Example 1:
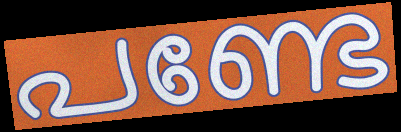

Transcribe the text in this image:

പണ്ടേ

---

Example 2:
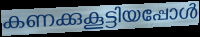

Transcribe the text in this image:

കണക്കുകൂട്ടിയപ്പോൾ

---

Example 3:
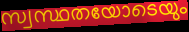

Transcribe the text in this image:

സ്വസ്ഥതയോടെയും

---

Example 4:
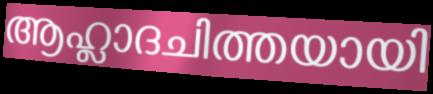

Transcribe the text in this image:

ആഹ്ലാദചിത്തയായി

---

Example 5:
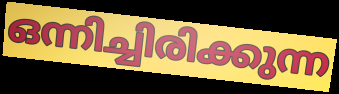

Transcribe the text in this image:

ഒന്നിച്ചിരിക്കുന്ന